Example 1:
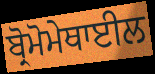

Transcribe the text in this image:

ਬ੍ਰੋਮੋਮੇਥਾਈਲ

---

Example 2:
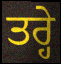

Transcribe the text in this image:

ਤਰ੍ਹੇ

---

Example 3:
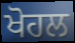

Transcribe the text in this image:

ਖੋਹਲ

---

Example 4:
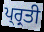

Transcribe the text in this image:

ਪ੍ਰ੍ਰਤੀ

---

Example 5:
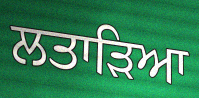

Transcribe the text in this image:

ਲਤਾੜਿਆ